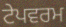
ਟੇਪਵਰਮ